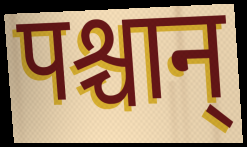
पश्चान्